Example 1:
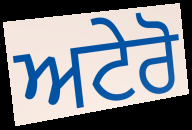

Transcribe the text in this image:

ਅਟੇਰੋ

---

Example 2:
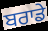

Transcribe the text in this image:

ਬਰਾਡੇ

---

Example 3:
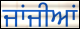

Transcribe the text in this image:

ਜਾਂਜੀਆਂ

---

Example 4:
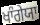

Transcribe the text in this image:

ਖਾੰਗੇਯਾ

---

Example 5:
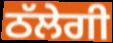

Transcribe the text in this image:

ਠੱਲੇਗੀ